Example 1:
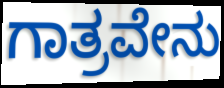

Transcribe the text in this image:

ಗಾತ್ರವೇನು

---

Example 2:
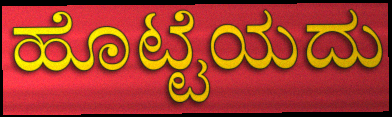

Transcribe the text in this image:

ಹೊಟ್ಟೆಯದು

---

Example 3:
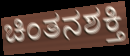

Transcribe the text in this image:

ಚಿಂತನಶಕ್ತಿ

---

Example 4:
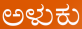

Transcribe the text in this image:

ಅಳುಕು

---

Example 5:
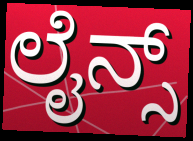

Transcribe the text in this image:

ಲೈನ್ಸ್